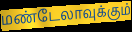
மண்டேலாவுக்கும்